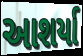
આશર્યા